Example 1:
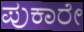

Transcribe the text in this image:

ಪುಕಾರೇ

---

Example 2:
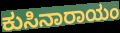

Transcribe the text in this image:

ಕುಸಿನಾರಾಯಂ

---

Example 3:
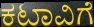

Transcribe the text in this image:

ಕಟಾವಿಗೆ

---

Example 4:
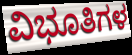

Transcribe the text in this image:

ವಿಭೂತಿಗಳ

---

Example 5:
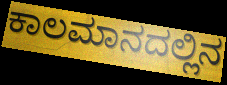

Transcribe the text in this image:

ಕಾಲಮಾನದಲ್ಲಿನ